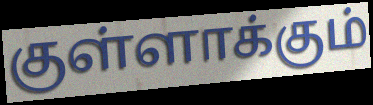
குள்ளாக்கும்